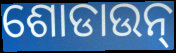
ଶୋଡାଉନ୍